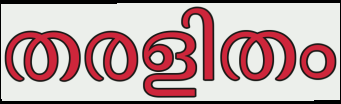
തരളിതം